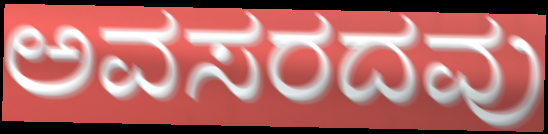
ಅವಸರದವು